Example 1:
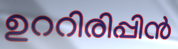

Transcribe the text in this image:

ഉററിരിപ്പിൻ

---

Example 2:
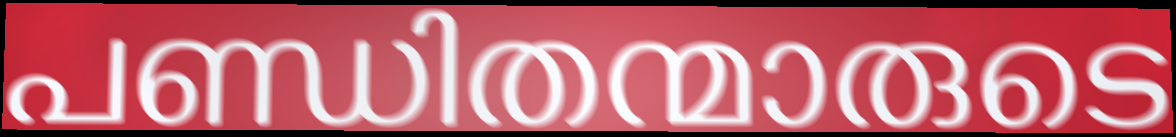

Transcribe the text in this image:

പണ്ഡിതന്മാരുടെ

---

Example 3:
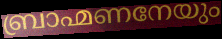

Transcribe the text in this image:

ബ്രാഹ്മണനേയും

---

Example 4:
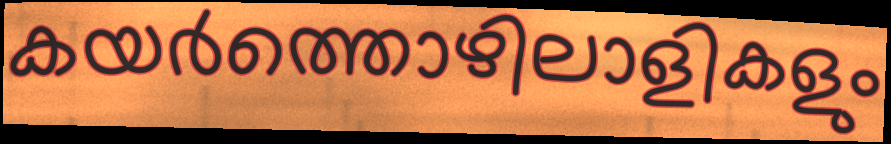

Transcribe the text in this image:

കയർത്തൊഴിലാളികളും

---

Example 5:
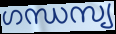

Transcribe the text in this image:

ഗന്ധസ്യ